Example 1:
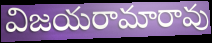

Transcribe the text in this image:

విజయరామారావు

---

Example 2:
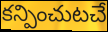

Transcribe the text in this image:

కన్పించుటచే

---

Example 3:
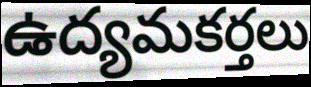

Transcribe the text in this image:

ఉద్యమకర్తలు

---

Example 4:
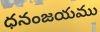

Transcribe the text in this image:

ధనంజయము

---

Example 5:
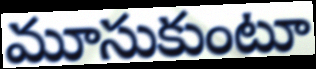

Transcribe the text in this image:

మూసుకుంటూ